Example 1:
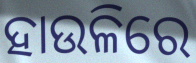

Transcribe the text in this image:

ହାଉଳିରେ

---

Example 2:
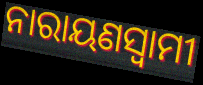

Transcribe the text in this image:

ନାରାୟଣସ୍ଵାମୀ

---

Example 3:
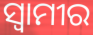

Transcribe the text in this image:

ସ୍ଵାମୀର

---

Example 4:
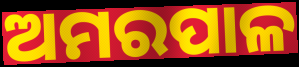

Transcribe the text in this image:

ଅମରପାଳ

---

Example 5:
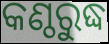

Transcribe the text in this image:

କଣ୍ଠରୁଦ୍ଧ